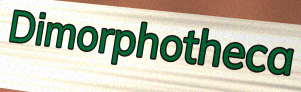
Dimorphotheca